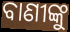
ବାଣୀଙ୍କୁ